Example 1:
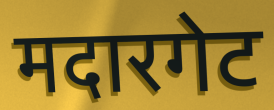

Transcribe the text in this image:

मदारगेट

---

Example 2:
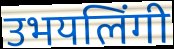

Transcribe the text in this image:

उभयलिंगी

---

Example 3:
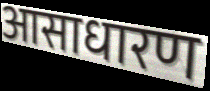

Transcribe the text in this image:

आसाधारण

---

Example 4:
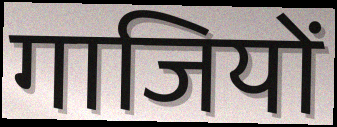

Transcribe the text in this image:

गाजियों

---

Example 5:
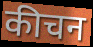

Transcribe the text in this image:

कीचन